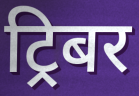
ट्रिबर